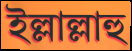
ইল্লাল্লাহু